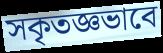
সকৃতজ্ঞভাবে